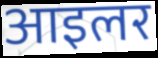
आइलर